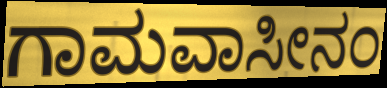
ಗಾಮವಾಸೀನಂ